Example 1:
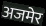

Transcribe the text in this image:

अजमेर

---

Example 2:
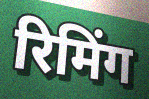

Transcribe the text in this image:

रिमिंग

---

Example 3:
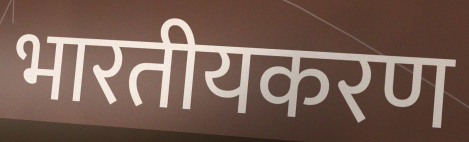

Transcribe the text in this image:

भारतीयकरण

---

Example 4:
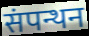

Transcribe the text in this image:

संपन्थन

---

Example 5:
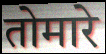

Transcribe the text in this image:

तोमारे